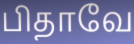
பிதாவே